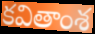
కవితాంశ